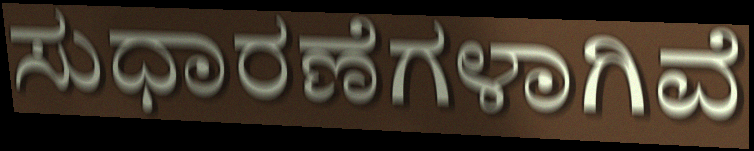
ಸುಧಾರಣೆಗಳಾಗಿವೆ